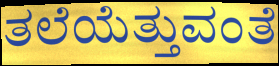
ತಲೆಯೆತ್ತುವಂತೆ